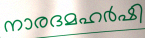
നാരദമഹർഷി